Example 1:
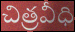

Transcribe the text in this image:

చిత్రవీధి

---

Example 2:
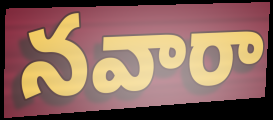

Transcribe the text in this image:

నవారా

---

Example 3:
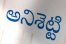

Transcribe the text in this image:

అనిశెట్టి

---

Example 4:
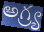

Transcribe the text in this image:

అగ్ర్య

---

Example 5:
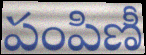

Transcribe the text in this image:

పంపిణీ